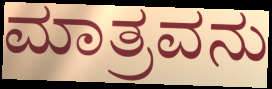
ಮಾತ್ರವನು